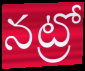
నట్రో